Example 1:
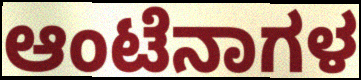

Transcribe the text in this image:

ಆಂಟೆನಾಗಳ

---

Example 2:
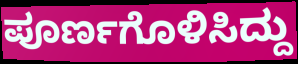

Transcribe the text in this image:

ಪೂರ್ಣಗೊಳಿಸಿದ್ದು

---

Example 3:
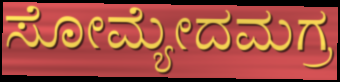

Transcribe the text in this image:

ಸೋಮ್ಯೇದಮಗ್ರ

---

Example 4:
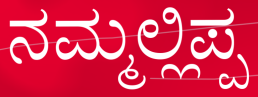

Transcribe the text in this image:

ನಮ್ಮಲ್ಲಿಪ್ಪ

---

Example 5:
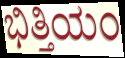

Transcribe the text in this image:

ಭಿತ್ತಿಯಂ